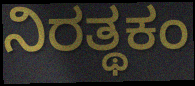
ನಿರತ್ಥಕಂ